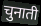
चुनाती